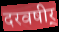
दरवषीर्